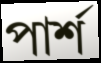
পার্শ